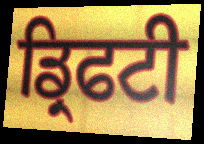
ਡ੍ਰਿਫਟੀ